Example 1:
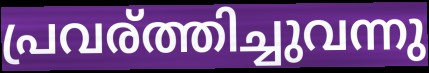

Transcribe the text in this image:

പ്രവര്ത്തിച്ചുവന്നു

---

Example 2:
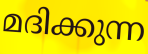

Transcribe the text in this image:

മദിക്കുന്ന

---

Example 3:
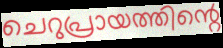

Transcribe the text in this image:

ചെറുപ്രായത്തിന്റെ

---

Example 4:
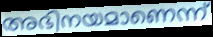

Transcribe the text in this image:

അഭിനയമാണെന്ന്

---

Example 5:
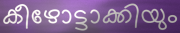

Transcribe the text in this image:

കീഴോട്ടാക്കിയും